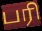
பரி